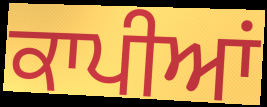
ਕਾਪੀਆਂ